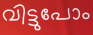
വിട്ടുപോം